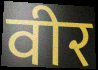
वीर